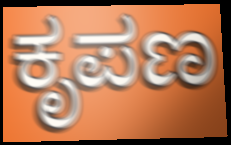
ಕೃಪಣ